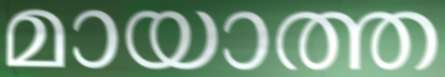
മായാത്ത